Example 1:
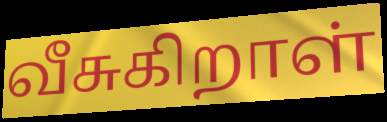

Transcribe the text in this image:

வீசுகிறாள்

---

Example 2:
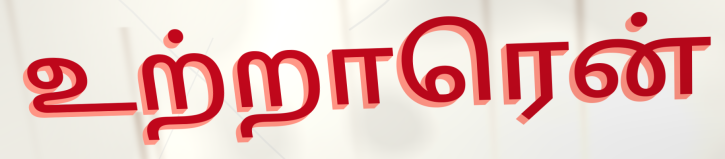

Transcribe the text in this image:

உற்றாரென்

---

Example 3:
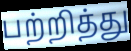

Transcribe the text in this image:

பற்றித்து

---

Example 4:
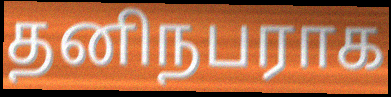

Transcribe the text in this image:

தனிநபராக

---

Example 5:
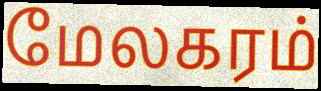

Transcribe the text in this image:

மேலகரம்